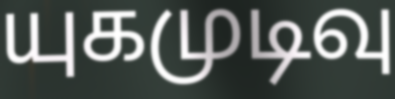
யுகமுடிவு